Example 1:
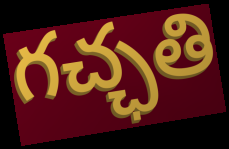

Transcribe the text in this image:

గచ్ఛతి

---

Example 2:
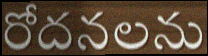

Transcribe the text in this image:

రోదనలను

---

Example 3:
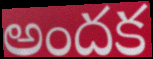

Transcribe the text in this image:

అందక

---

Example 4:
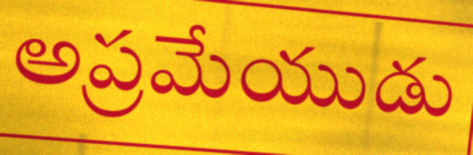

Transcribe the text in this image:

అప్రమేయుడు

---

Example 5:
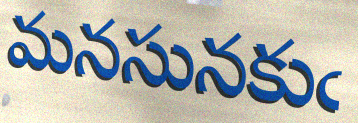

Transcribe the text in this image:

మనసునకుఁ